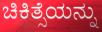
ಚಿಕಿತ್ಸೆಯನ್ನು